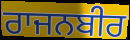
ਰਾਜਨਬੀਰ